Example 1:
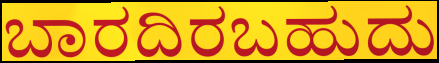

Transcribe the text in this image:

ಬಾರದಿರಬಹುದು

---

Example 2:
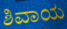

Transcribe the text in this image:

ಶಿವಾಯ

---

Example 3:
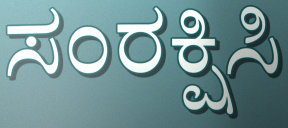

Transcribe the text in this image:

ಸಂರಕ್ಷಿಸಿ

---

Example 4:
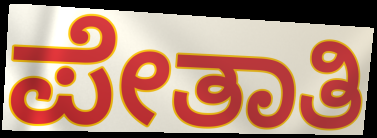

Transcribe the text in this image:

ಪೇತಾತಿ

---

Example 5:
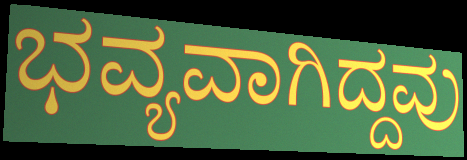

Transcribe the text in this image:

ಭವ್ಯವಾಗಿದ್ದವು